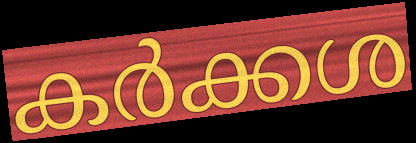
കർക്കശ